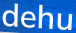
dehu